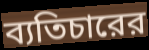
ব্যতিচারের